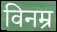
विनम्र